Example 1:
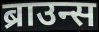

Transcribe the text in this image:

ब्राउन्स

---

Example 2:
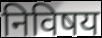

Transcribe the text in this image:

निविषय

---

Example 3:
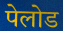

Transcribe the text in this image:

पेलोड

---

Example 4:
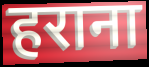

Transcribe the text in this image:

हराना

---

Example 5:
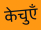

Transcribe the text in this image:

केचुएँ